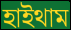
হাইথাম